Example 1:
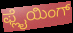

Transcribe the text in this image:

ಫ್ಲೈಯಿಂಗ್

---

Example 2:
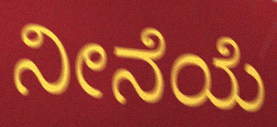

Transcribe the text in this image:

ನೀನೆಯೆ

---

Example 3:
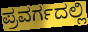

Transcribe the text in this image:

ಪ್ರವರ್ಗದಲ್ಲಿ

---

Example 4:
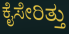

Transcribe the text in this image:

ಕೈಸೇರಿತ್ತು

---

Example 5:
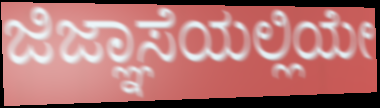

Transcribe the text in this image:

ಜಿಜ್ಞಾಸೆಯಲ್ಲಿಯೇ